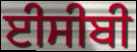
ਈਸੀਬੀ